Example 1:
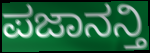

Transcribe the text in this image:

ಪಜಾನನ್ತಿ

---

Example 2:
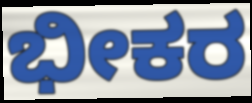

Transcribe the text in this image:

ಭೀಕರ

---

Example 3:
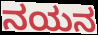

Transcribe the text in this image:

ನಯನ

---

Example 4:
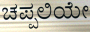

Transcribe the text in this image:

ಚಪ್ಪಲಿಯೇ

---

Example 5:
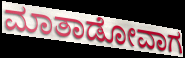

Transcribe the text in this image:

ಮಾತಾಡೋವಾಗ